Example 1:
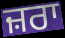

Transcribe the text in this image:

ਜ਼ਰਾ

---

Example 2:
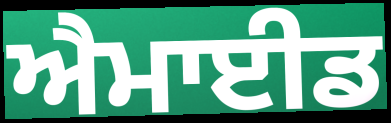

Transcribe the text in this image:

ਐਮਾਈਡ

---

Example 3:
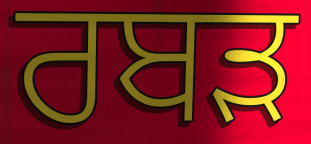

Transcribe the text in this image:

ਰਬੜ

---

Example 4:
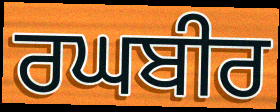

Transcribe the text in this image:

ਰਘਬੀਰ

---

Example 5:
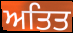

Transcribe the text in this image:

ਅਤਿਤ